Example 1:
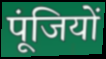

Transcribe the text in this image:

पूंजियों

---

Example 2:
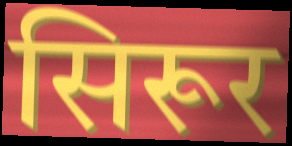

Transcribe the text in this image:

सिरूर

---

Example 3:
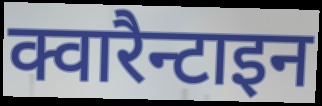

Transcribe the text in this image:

क्वारैन्टाइन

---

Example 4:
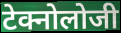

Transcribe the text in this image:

टेक्नोलोजी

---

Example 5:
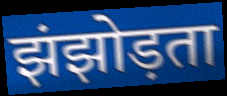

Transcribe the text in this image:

झंझोड़ता